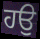
ਹਉ